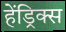
हेंड्रिक्स